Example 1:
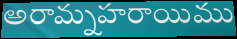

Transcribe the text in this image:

అరామ్నహరాయిము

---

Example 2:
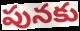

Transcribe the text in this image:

పునకు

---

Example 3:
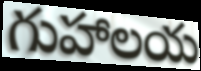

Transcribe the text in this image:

గుహాలయ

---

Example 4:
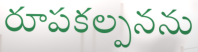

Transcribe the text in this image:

రూపకల్పనను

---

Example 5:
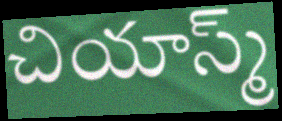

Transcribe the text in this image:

చియాస్మ్